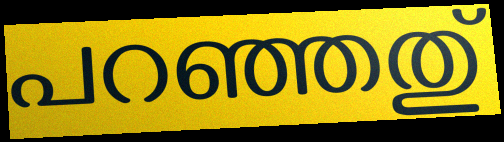
പറഞ്ഞതു്